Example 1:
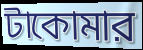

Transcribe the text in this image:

টাকোমার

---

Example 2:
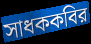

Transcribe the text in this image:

সাধককবির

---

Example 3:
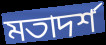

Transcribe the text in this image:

মতাদর্শ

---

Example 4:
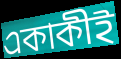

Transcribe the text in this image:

একাকীই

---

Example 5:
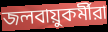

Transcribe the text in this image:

জলবায়ুকর্মীরা